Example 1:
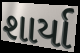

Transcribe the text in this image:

શાર્યા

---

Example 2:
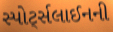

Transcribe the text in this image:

સ્પોર્ટ્સલાઈનની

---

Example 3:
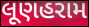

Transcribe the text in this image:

લૂણહરામ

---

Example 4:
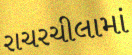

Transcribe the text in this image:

રાચરચીલામાં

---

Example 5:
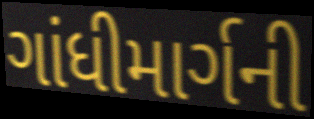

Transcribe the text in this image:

ગાંધીમાર્ગની